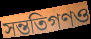
সন্ততিগণও